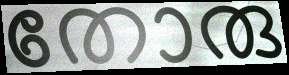
തോരു